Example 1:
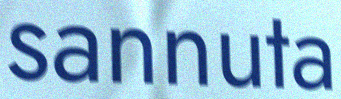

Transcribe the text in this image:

sannuta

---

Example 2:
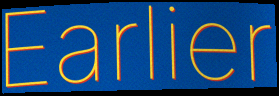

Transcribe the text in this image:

Earlier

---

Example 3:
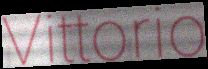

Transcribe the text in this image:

Vittorio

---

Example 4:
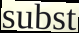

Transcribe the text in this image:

subst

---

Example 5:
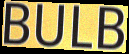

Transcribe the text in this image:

BULB